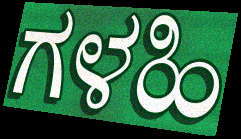
ಗಳಹಿ